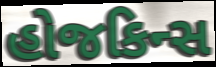
હોજકિન્સ